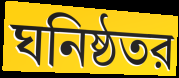
ঘনিষ্ঠতর